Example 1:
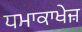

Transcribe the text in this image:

ਧਮਾਕਾਖੇਜ਼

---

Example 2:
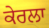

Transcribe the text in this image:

ਕੇਰਲਾ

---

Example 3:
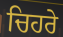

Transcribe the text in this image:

ਚਿਹਰੇ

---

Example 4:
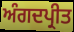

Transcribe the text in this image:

ਅੰਗਦਪ੍ਰੀਤ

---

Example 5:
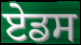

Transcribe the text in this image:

ਏਡਸ